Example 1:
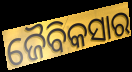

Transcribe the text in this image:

ଜୈବିକସାର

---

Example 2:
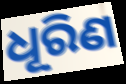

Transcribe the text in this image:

ଧୂରିଣ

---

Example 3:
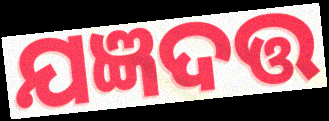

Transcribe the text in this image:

ଯଜ୍ଞଦତ୍ତ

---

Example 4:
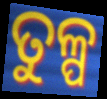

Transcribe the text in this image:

ତୁଳ୍ପ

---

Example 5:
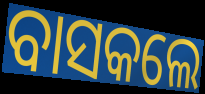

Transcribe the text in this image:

ବାସକଲେ